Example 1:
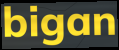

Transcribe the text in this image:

bigan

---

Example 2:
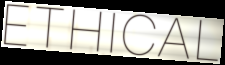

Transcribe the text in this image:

ETHICAL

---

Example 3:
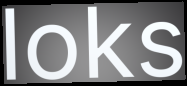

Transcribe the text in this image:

loks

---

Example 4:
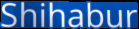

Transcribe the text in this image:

Shihabur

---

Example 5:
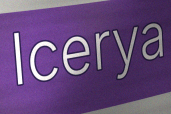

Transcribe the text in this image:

Icerya